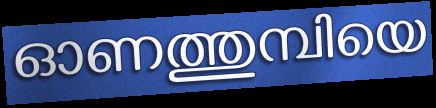
ഓണത്തുമ്പിയെ